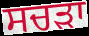
ਸਚੜਾ